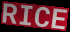
RICE